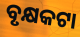
ବୃକ୍ଷକଟା